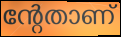
ന്റേതാണ്